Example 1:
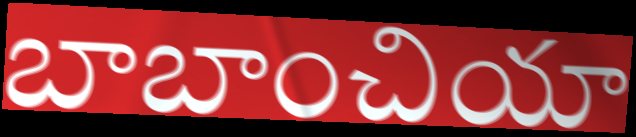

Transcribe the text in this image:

బాబాంచియా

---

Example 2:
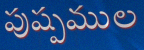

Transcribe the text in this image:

పుష్పముల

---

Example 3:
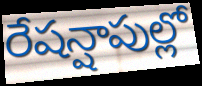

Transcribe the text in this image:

రేషన్షాపుల్లో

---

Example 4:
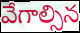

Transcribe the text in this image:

వేగాల్సిన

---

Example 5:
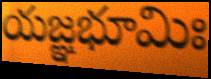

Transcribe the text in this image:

యజ్ఞభూమిః